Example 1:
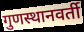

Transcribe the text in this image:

गुणस्थानवर्ती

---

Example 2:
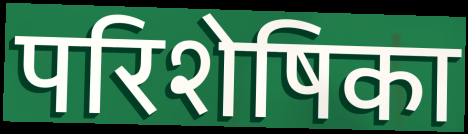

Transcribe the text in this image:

परिशेषिका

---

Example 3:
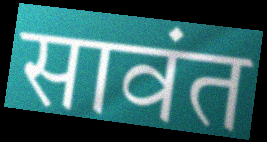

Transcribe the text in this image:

सावंत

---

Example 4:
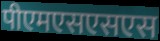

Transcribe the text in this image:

पीएमएसएसएस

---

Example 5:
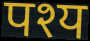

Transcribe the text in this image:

पश्य